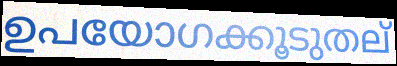
ഉപയോഗക്കൂടുതല്